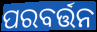
ପରବର୍ତ୍ତନ